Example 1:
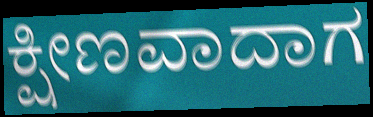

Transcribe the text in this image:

ಕ್ಷೀಣವಾದಾಗ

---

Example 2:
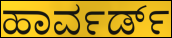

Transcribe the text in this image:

ಹಾರ್ವರ್ಡ್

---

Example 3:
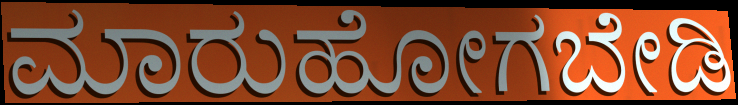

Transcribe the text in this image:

ಮಾರುಹೋಗಬೇಡಿ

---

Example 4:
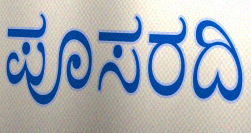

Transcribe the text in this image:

ಪೂಸರದಿ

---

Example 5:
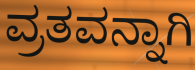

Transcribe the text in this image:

ವ್ರತವನ್ನಾಗಿ